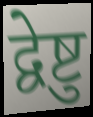
द्वेष्टु